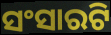
ସଂସାରଟି